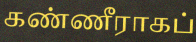
கண்ணீராகப்